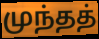
முந்தத்